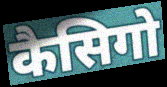
कैसिगो